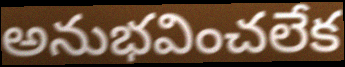
అనుభవించలేక